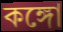
কঙ্গো